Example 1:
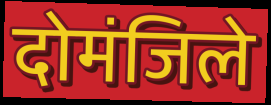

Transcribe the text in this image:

दोमंजिले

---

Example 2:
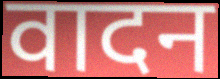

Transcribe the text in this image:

वादन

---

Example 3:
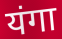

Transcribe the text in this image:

यंगा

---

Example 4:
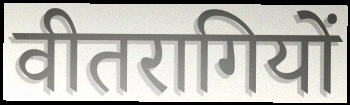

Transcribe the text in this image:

वीतरागियों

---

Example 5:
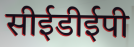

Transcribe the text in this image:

सीईडीईपी